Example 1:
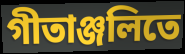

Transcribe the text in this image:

গীতাঞ্জলিতে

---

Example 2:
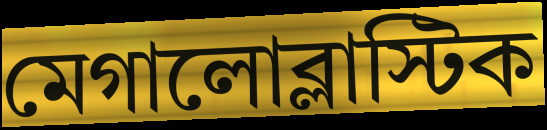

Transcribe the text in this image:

মেগালোব্লাস্টিক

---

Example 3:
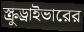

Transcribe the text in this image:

স্ক্রুড্রাইভারের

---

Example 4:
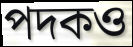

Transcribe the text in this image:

পদকও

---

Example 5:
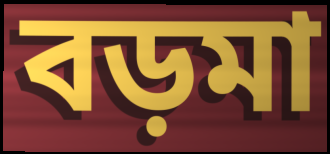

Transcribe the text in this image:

বড়মা